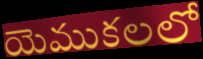
యెముకలలో